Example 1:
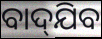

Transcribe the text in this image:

ବାଦ୍‌ଯିବ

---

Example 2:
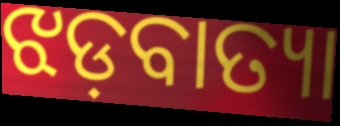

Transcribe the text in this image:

ଝଡ଼ବାତ୍ୟା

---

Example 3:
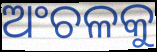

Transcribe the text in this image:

ଅଂଚଳକୁ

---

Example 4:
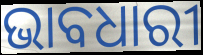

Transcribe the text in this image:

ଭାବଧାରୀ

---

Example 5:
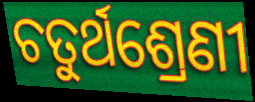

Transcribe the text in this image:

ଚତୁର୍ଥଶ୍ରେଣୀ